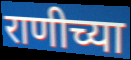
राणीच्या